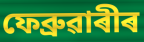
ফেব্ৰুৱাৰীৰ